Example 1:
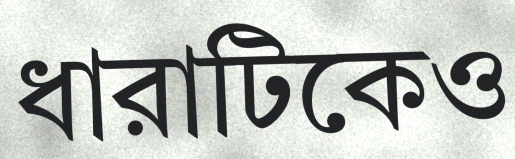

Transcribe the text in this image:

ধারাটিকেও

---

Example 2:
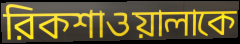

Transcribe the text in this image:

রিকশাওয়ালাকে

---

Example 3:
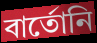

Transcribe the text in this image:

বার্তোনি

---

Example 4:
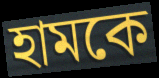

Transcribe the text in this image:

হামকে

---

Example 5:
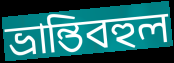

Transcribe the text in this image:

ভ্রান্তিবহুল